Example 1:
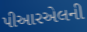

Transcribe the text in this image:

પીઆરએલની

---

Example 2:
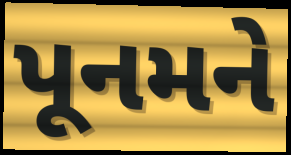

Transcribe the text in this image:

પૂનમને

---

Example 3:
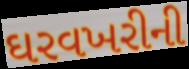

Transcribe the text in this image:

ઘરવખરીની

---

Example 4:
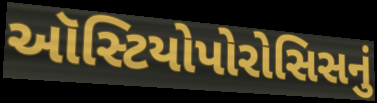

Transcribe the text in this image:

ઑસ્ટિયોપોરોસિસનું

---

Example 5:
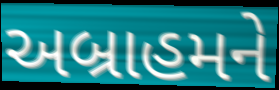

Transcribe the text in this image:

અબ્રાહમને